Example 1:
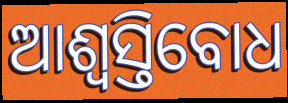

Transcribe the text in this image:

ଆଶ୍ଵସ୍ତିବୋଧ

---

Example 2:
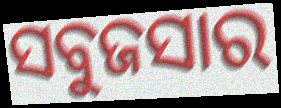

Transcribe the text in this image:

ସବୁଜସାର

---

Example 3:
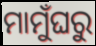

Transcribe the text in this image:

ମାମୁଁଘରୁ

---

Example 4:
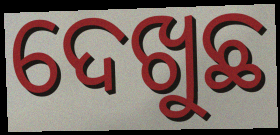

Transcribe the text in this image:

ଦେଖୁଛ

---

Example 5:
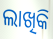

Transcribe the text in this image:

ଲାଖିକି